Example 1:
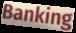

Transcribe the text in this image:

Banking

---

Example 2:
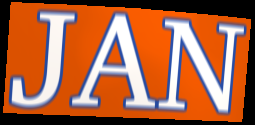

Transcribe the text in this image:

JAN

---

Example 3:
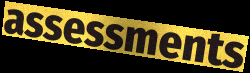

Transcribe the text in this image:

assessments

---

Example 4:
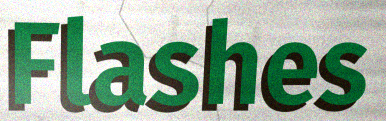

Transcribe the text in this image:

Flashes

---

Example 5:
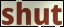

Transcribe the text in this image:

shut